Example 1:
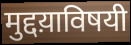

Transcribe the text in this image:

मुद्दय़ाविषयी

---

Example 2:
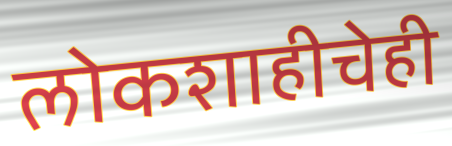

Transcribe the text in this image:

लोकशाहीचेही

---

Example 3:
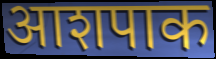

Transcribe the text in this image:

आशपाक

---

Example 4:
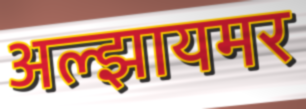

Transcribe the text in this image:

अल्झायमर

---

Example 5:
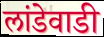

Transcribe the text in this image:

लांडेवाडी